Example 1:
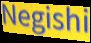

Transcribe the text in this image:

Negishi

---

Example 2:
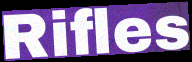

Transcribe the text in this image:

Rifles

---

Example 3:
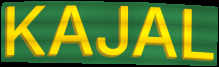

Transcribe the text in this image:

KAJAL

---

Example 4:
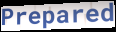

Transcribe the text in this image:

Prepared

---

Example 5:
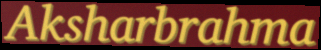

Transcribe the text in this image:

Aksharbrahma